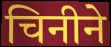
चिनीने